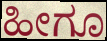
ಹೀಗೂ